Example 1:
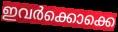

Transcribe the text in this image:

ഇവർക്കൊക്കെ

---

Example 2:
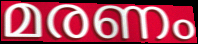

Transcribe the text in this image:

മരണം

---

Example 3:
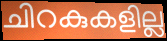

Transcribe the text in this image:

ചിറകുകളില്ല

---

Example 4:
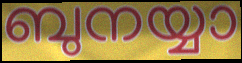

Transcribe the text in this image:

ബുനയ്യാ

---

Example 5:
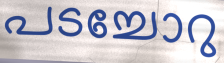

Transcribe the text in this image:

പടച്ചോറു